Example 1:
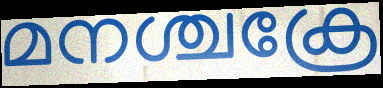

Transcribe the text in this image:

മനശ്ചക്രേ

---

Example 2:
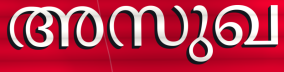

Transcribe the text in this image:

അസുഖ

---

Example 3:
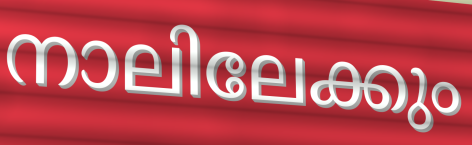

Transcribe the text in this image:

നാലിലേക്കും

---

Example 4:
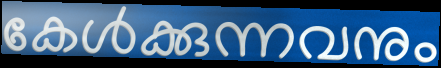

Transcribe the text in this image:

കേൾക്കുന്നവനും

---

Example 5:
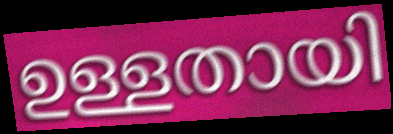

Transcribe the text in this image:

ഉള്ളതായി